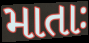
માતાઃ